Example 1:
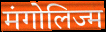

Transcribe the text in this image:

मंगोलिज्म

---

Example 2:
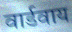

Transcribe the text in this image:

वार्डवाय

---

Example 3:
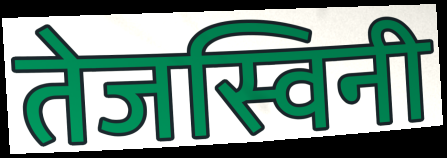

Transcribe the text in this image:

तेजस्विनी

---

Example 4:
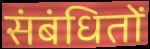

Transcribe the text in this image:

संबंधितों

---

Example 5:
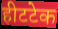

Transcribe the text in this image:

हीटटेक